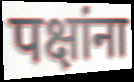
पक्षांना